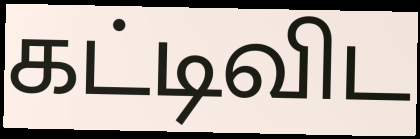
கட்டிவிட